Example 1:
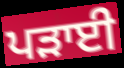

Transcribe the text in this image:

ਪੜਾਈ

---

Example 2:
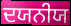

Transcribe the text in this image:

ਦਯਨੀਯ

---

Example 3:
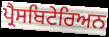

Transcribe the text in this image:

ਪ੍ਰੈਸਬਿਟੇਰਿਅਨ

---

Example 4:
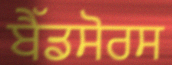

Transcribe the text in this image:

ਬੈੱਡਸੋਰਸ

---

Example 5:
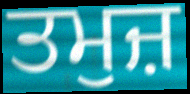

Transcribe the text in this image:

ਤਮੁਜ਼